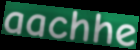
aachhe